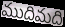
ముదిమది